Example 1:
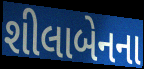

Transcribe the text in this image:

શીલાબેનના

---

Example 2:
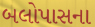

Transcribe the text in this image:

બલોપાસના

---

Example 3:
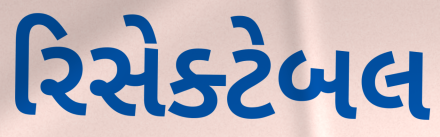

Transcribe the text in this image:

રિસેક્ટેબલ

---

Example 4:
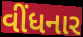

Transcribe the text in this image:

વીંધનાર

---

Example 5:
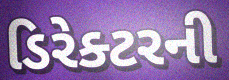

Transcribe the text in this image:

ડિરેક્ટરની